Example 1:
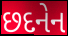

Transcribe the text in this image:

છદનેન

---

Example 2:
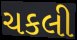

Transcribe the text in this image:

ચકલી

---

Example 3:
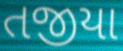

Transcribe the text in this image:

તજીયા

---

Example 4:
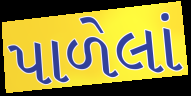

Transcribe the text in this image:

પાળેલાં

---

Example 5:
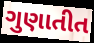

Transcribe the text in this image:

ગુણાતીત